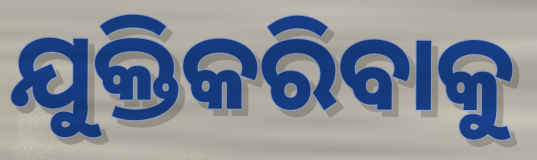
ଯୁକ୍ତିକରିବାକୁ